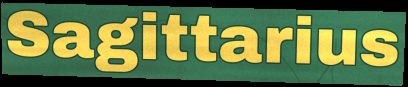
Sagittarius